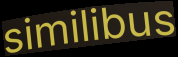
similibus